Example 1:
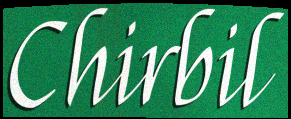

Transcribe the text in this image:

Chirbil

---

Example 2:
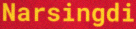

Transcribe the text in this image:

Narsingdi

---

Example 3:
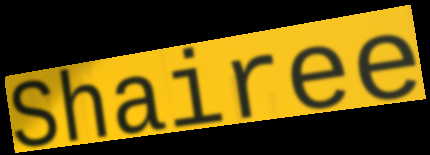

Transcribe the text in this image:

Shairee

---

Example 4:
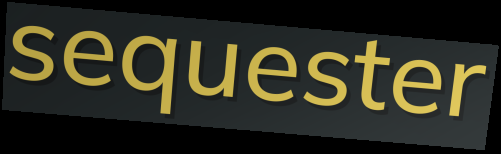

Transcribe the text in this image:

sequester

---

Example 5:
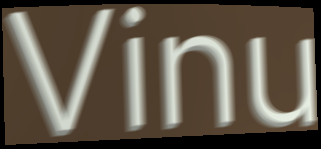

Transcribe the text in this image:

Vinu